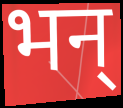
भन्